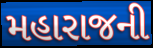
મહારાજની